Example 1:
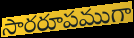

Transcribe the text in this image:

సారరూపముగా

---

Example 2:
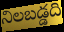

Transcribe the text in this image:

నిలబడ్డది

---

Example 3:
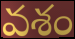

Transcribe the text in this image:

వశం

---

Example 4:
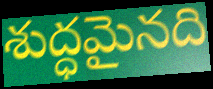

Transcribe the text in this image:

శుద్ధమైనది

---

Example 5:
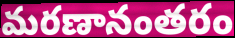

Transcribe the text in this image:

మరణానంతరం